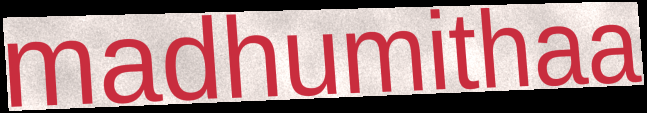
madhumithaa